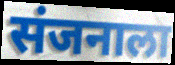
संजनाला